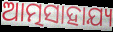
ଆତ୍ମସାହାଯ୍ୟ